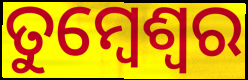
ତୁମ୍ବେଶ୍ଵର